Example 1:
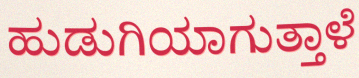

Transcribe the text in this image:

ಹುಡುಗಿಯಾಗುತ್ತಾಳೆ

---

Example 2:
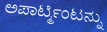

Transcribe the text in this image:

ಅಪಾರ್ಟ್ಮೆಂಟನ್ನು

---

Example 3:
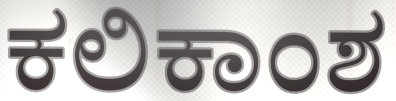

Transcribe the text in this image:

ಕಲಿಕಾಂಶ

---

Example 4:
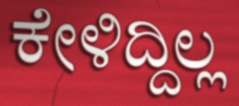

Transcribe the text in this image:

ಕೇಳಿದ್ದಿಲ್ಲ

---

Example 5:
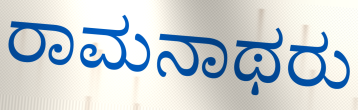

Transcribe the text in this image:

ರಾಮನಾಥರು